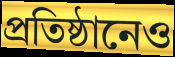
প্রতিষ্ঠানেও